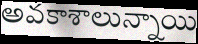
అవకాశాలున్నాయి